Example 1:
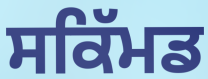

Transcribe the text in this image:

ਸਕਿੱਮਡ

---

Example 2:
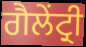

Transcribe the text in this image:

ਗੈਲੇਂਟ੍ਰੀ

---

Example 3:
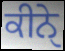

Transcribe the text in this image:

ਕੀਨੇੑ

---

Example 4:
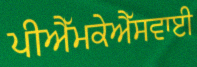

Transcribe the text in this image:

ਪੀਐੱਮਕੇਐੱਸਵਾਈ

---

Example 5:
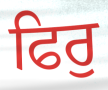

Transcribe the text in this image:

ਫਿਰੁ